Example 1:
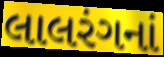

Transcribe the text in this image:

લાલરંગનાં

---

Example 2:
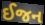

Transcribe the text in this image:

ઈજન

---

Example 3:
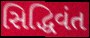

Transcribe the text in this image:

સિદ્ધિવંત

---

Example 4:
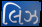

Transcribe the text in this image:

લિઝ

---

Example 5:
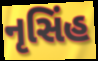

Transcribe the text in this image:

નૃસિંહ